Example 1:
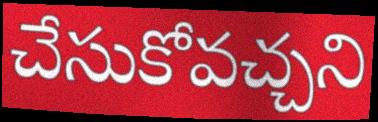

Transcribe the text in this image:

చేసుకోవచ్చని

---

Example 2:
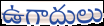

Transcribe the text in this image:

ఉగాదులు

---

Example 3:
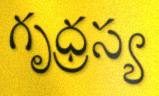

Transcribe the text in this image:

గృధ్రస్య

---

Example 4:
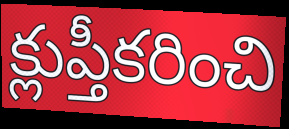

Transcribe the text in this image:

క్లుప్తీకరించి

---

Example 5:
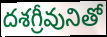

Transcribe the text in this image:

దశగ్రీవునితో